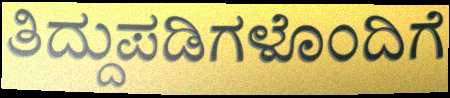
ತಿದ್ದುಪಡಿಗಳೊಂದಿಗೆ